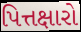
પિત્તક્ષારો